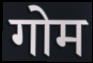
गोम